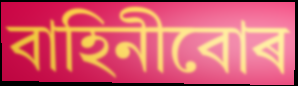
বাহিনীবোৰ